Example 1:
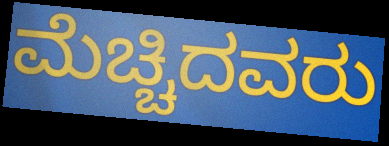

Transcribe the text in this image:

ಮೆಚ್ಚಿದವರು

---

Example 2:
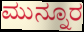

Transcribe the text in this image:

ಮುನ್ನೂರ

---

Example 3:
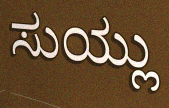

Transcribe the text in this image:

ಸುಯ್ಲು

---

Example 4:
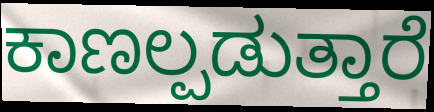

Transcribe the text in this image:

ಕಾಣಲ್ಪಡುತ್ತಾರೆ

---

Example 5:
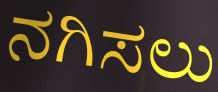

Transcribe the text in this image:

ನಗಿಸಲು